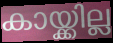
കായ്ക്കില്ല